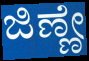
ಜಿಣ್ಣೇ